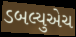
ડબલ્યુએચ